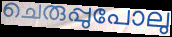
ചെരുപ്പുപോലു